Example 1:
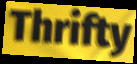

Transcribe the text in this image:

Thrifty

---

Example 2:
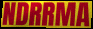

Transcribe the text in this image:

NDRRMA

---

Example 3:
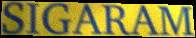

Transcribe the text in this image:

SIGARAM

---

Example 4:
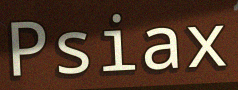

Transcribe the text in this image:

Psiax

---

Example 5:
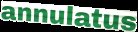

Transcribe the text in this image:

annulatus